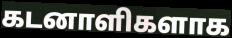
கடனாளிகளாக